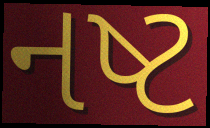
નષ્ટ